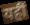
यहीं